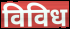
विविध